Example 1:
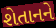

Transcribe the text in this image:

શેતાનને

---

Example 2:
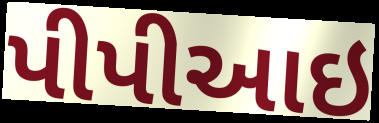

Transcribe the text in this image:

પીપીઆઇ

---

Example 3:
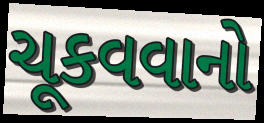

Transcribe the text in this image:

ચૂકવવાનો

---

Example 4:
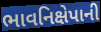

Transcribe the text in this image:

ભાવનિક્ષેપાની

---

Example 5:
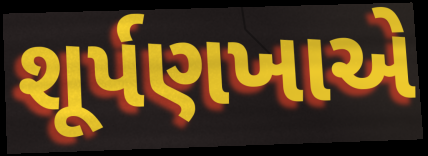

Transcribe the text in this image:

શૂર્પણખાએ